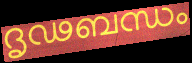
ദൃഢബന്ധം